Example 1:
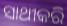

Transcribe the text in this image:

ସାଥୀକରି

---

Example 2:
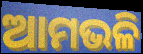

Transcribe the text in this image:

ଆମଭଳି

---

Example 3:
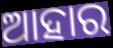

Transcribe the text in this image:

ଆହାର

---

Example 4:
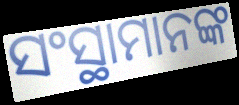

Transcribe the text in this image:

ସଂସ୍ଥାମାନଙ୍କ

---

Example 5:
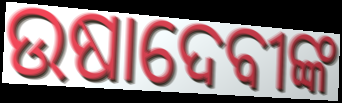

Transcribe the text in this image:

ଉଷାଦେବୀଙ୍କ